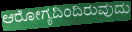
ಆರೋಗ್ಯದಿಂದಿರುವುದು